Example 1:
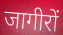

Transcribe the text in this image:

जागीरों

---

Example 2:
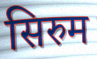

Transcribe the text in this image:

सिरुम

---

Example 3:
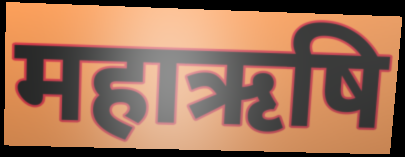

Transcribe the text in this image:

महाऋषि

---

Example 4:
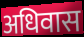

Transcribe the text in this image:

अधिवास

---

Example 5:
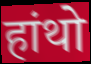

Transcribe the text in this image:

हांथो